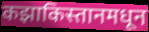
कझाकिस्तानमधून